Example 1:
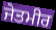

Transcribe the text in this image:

ਜੇਤਮੀਰ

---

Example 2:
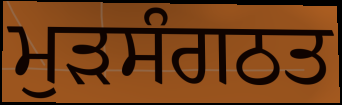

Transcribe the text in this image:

ਮੁੜਸੰਗਠਤ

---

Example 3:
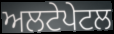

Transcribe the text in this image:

ਅਲਟੇਪੇਟਲ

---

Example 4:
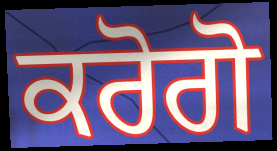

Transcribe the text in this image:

ਕਰੋਗੋ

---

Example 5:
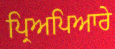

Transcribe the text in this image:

ਪ੍ਰਿਅਪਿਆਰੇ